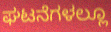
ಘಟನೆಗಳಲ್ಲೂ